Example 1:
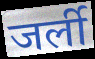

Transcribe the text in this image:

जर्ली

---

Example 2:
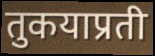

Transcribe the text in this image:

तुकयाप्रती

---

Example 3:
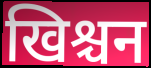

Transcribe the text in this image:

खिश्चन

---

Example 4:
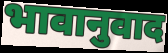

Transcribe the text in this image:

भावानुवाद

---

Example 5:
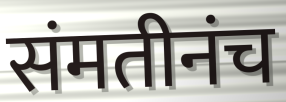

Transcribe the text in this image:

संमतीनंच